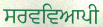
ਸਰਵਵਿਆਪੀ